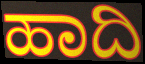
ಹಾದಿ